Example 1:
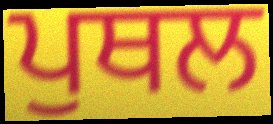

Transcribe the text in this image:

ਪੁਥਲ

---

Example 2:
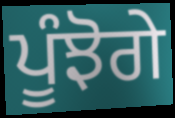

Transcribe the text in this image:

ਪੂੰਝੋਗੇ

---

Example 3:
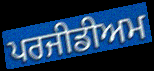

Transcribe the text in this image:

ਪਰਜੀਡੀਅਮ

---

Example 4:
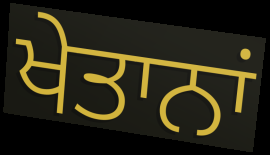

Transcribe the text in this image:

ਖੇਤਾਨਾਂ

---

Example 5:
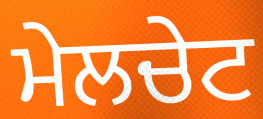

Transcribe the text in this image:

ਮੇਲਚੇਟ